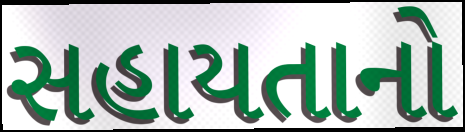
સહાયતાનો